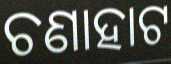
ଚଣାହାଟ